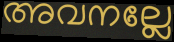
അവനല്ലേ